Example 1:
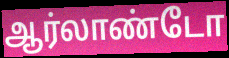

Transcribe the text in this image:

ஆர்லாண்டோ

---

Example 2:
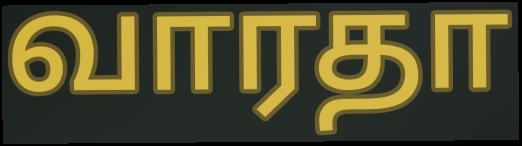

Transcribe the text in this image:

வாரதா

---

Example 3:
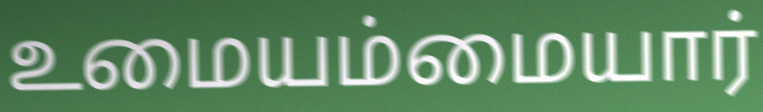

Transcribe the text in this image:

உமையம்மையார்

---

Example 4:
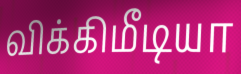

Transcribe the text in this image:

விக்கிமீடியா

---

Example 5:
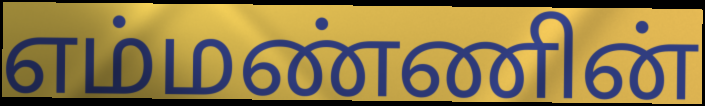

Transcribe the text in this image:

எம்மண்ணின்